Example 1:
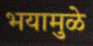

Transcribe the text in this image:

भयामुळे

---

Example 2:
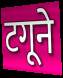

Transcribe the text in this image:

टगूने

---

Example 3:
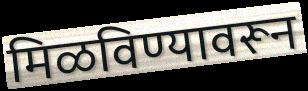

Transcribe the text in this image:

मिळविण्यावरून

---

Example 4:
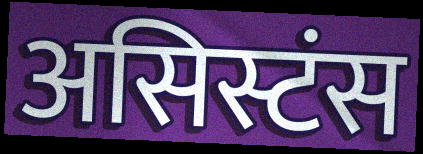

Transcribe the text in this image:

असिस्टंस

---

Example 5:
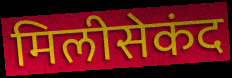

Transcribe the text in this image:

मिलीसेकंद